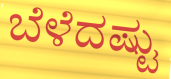
ಬೆಳೆದಷ್ಟು